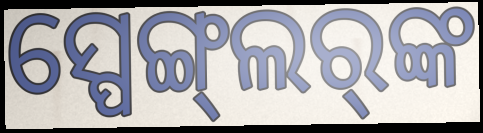
ସ୍ପେଙ୍ଗ୍‌ଲର୍‌ଙ୍କ